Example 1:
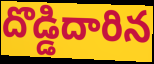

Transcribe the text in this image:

దొడ్డిదారిన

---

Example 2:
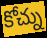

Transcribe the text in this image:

కోచ్ను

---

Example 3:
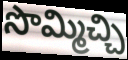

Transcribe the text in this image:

సొమ్మిచ్చి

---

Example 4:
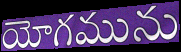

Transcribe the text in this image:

యోగమును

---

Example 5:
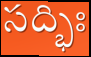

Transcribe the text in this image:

సద్భిః